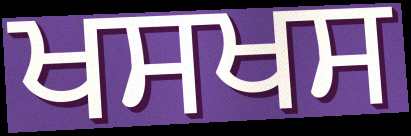
ਖਸਖਸ